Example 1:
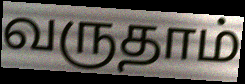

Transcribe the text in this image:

வருதாம்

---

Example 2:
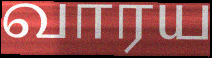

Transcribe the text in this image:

வாரய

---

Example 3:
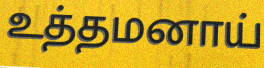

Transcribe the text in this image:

உத்தமனாய்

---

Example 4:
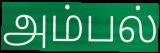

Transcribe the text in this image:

அம்பல்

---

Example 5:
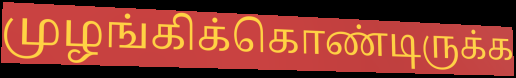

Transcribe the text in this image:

முழங்கிக்கொண்டிருக்க